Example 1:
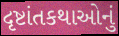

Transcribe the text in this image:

દૃષ્ટાંતકથાઓનું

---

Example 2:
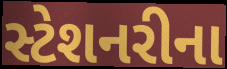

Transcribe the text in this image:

સ્ટેશનરીના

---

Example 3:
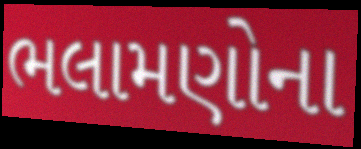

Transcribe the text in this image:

ભલામણોના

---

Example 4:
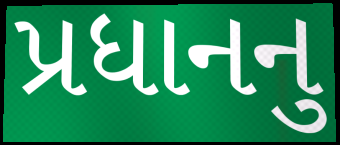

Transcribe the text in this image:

પ્રધાનનુ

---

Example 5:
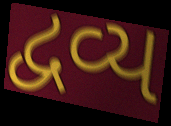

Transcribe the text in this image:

દ્વવ્ય